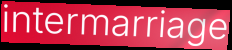
intermarriage